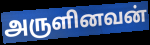
அருளினவன்